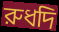
ৰুধদি